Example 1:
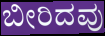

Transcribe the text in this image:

ಬೀರಿದವು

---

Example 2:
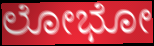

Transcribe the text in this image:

ಲೋಭೋ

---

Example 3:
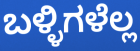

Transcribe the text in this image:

ಬಳ್ಳಿಗಳೆಲ್ಲ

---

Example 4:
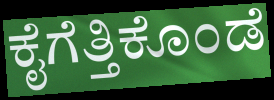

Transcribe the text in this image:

ಕೈಗೆತ್ತಿಕೊಂಡೆ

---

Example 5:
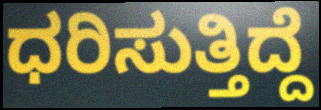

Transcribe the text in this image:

ಧರಿಸುತ್ತಿದ್ದೆ